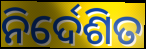
ନିର୍ଦେଶିତ